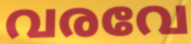
വരവേ